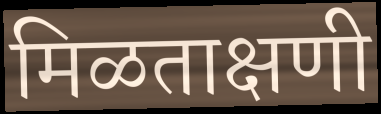
मिळताक्षणी